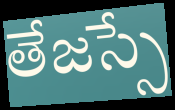
తేజస్సే